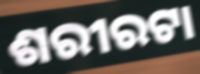
ଶରୀରଟା